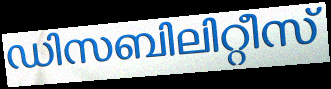
ഡിസബിലിറ്റീസ്